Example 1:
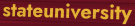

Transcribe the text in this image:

stateuniversity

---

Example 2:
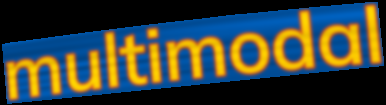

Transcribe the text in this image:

multimodal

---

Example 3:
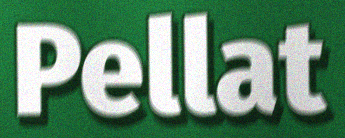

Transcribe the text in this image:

Pellat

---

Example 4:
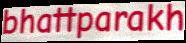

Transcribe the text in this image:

bhattparakh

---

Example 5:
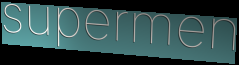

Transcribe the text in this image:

supermen